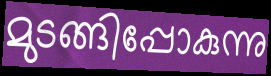
മുടങ്ങിപ്പോകുന്നു